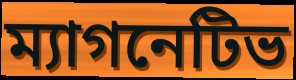
ম্যাগনেটিভ